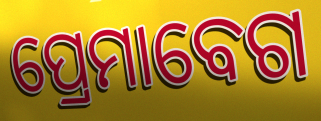
ପ୍ରେମାବେଗ